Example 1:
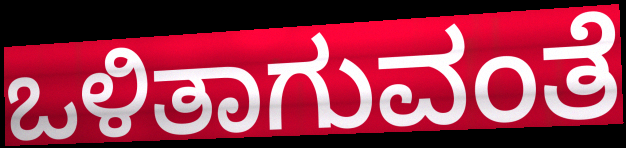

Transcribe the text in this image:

ಒಳಿತಾಗುವಂತೆ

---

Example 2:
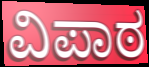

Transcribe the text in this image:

ವಿಪಾಠ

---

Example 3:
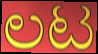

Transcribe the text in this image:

ಲಟ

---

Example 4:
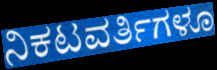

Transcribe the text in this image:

ನಿಕಟವರ್ತಿಗಳೂ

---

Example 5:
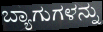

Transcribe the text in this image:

ಬ್ಯಾಗುಗಳನ್ನು